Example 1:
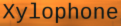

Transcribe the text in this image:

Xylophone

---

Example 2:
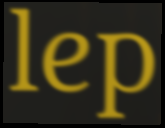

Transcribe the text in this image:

lep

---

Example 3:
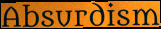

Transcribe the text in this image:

Absurdism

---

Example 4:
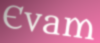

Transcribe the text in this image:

Evam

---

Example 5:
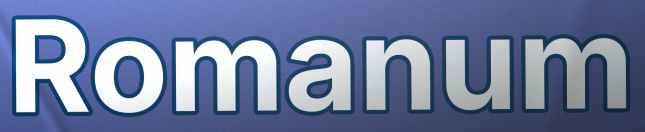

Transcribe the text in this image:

Romanum